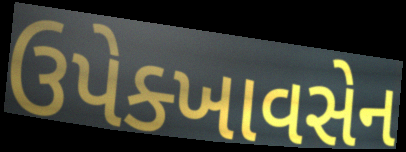
ઉપેક્ખાવસેન